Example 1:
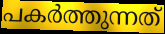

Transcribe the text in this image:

പകർത്തുന്നത്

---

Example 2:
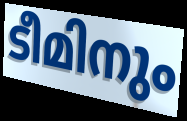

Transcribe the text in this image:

ടീമിനും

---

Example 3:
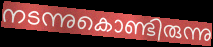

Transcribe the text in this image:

നടന്നുകൊണ്ടിരുന്നു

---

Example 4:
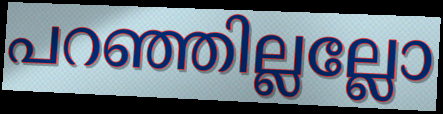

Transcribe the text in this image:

പറഞ്ഞില്ലല്ലോ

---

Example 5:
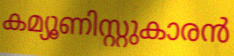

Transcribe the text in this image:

കമ്യൂണിസ്റ്റുകാരൻ